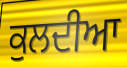
ਕੁਲਦੀਆ